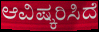
ಆವಿಷ್ಕರಿಸಿದೆ